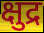
क्षुद्र